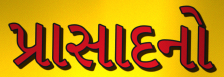
પ્રાસાદનો